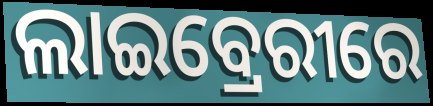
ଲାଇବ୍ରେରୀରେ